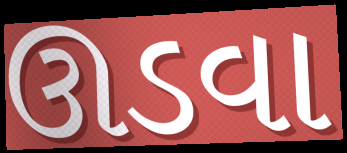
ઊડવા